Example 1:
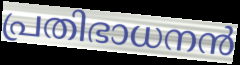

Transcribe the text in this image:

പ്രതിഭാധനൻ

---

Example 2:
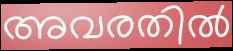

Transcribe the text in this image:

അവരതിൽ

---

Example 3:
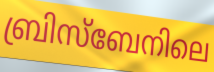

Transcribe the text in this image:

ബ്രിസ്ബേനിലെ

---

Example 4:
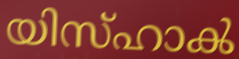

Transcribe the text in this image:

യിസ്ഹാൿ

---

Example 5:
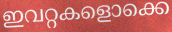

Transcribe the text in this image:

ഇവറ്റകളൊക്കെ